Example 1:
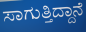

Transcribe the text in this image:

ಸಾಗುತ್ತಿದ್ದಾನೆ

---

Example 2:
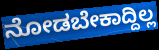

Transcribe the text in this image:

ನೋಡಬೇಕಾದ್ದಿಲ್ಲ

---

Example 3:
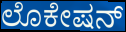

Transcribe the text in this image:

ಲೊಕೇಷನ್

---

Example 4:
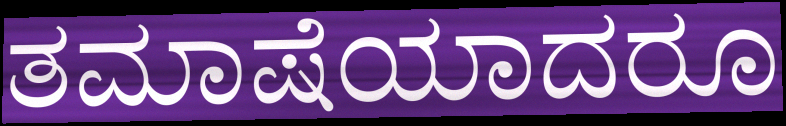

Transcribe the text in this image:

ತಮಾಷೆಯಾದರೂ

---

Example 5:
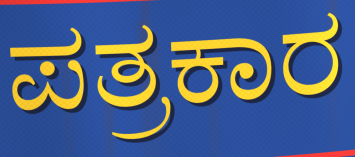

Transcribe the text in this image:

ಪತ್ರಕಾರ